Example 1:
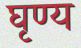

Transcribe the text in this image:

घृण्य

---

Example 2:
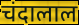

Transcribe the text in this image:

चंदालाल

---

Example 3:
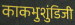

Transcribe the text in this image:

काकभुशुंडिजी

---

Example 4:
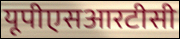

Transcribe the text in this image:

यूपीएसआरटीसी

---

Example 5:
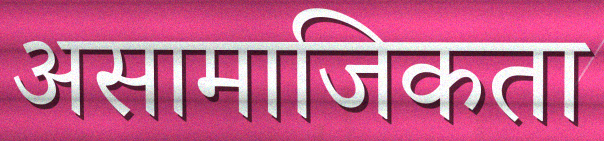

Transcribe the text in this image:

असामाजिकता